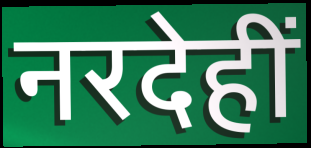
नरदेहीं